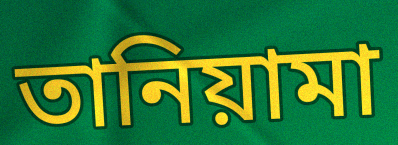
তানিয়ামা